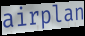
airplan